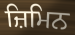
ਜ਼ਿਮਿਨ